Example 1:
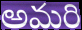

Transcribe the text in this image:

అమరి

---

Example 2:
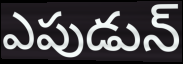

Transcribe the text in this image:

ఎపుడున్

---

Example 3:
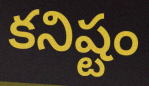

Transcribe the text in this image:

కనిష్టం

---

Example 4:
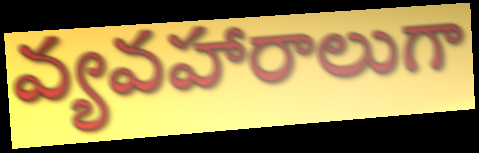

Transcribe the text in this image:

వ్యవహారాలుగా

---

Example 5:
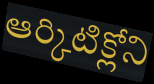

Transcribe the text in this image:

ఆర్కిటిక్లోని